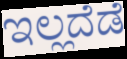
ಇಲ್ಲದೆಡೆ